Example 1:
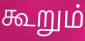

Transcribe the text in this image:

கூறும்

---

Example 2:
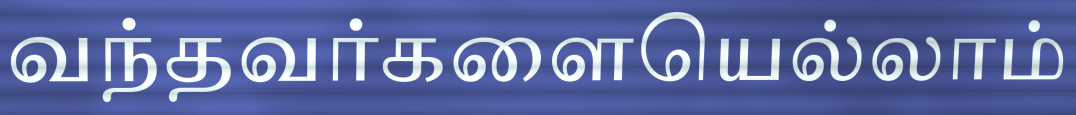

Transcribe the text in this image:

வந்தவர்களையெல்லாம்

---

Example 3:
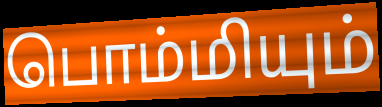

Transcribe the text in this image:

பொம்மியும்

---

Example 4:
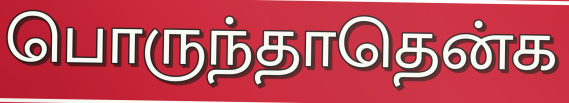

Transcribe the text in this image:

பொருந்தாதென்க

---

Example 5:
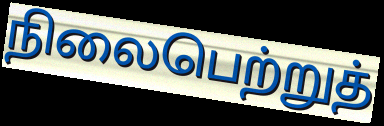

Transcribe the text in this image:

நிலைபெற்றுத்